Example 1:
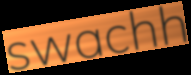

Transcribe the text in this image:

swachh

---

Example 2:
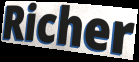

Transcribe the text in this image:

Richer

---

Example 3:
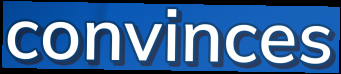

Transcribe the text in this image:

convinces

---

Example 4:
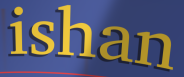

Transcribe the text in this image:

ishan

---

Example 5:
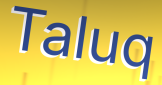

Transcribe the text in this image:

Taluq